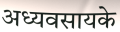
अध्यवसायके